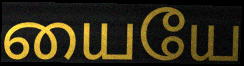
யையே